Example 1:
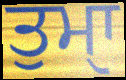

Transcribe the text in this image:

ਤੁਮਾੑ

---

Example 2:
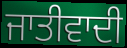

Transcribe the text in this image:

ਜਾਤੀਵਾਦੀ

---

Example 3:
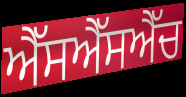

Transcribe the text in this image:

ਐੱਸਐੱਸਐੱਚ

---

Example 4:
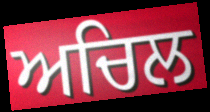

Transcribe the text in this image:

ਅਚਿਲ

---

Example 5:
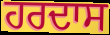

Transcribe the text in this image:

ਹਰਦਾਸ